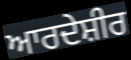
ਆਰਦੇਸ਼ੀਰ